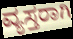
ವ್ಯಸ್ತರಾಗಿ